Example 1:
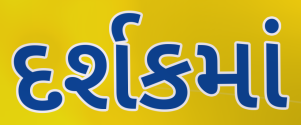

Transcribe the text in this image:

દર્શકમાં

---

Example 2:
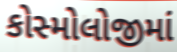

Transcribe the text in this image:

કોસ્મોલોજીમાં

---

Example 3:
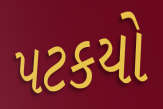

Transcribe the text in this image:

પટકયો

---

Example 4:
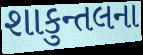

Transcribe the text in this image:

શાકુન્તલના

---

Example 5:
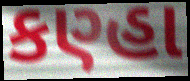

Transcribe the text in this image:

કણ્હા